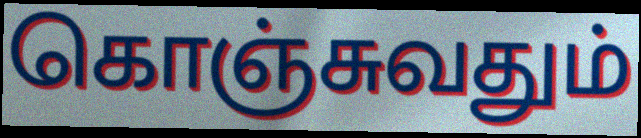
கொஞ்சுவதும்